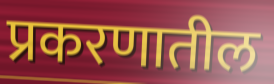
प्रकरणातील